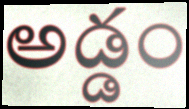
అడ్డం